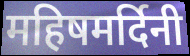
महिषमर्दिनी